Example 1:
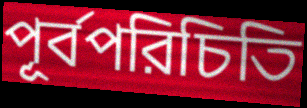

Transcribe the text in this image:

পূর্বপরিচিতি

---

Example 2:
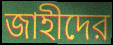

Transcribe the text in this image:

জাহীদের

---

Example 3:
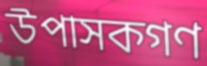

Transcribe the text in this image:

উপাসকগণ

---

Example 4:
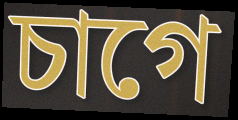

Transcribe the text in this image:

চাগে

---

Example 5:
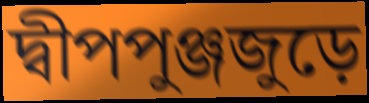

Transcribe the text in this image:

দ্বীপপুঞ্জজুড়ে